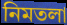
নিমতলা